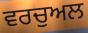
ਵਰਚੁਅਲ